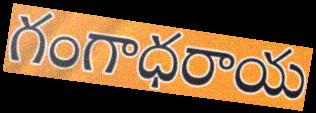
గంగాధరాయ